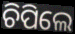
ଚିପିଲେ